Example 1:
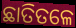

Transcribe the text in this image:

ଛାତିତଳେ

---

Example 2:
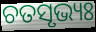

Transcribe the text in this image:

ଚତସୃଭ୍ୟଃ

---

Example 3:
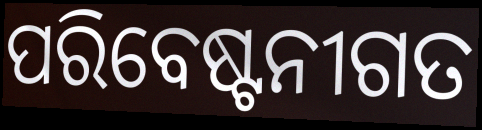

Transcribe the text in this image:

ପରିବେଷ୍ଟନୀଗତ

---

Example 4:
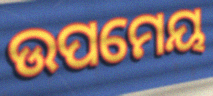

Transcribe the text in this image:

ଉପମେୟ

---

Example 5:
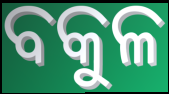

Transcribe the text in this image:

ବକୁଳ